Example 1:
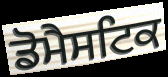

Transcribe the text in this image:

ਡੋਮੈਸਟਿਕ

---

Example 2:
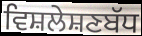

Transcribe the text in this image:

ਵਿਸ਼ਲੇਸ਼ਣਬੱਧ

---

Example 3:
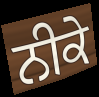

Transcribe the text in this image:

ਨੀਕੇ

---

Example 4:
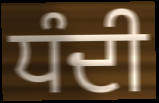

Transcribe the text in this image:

ਧੰਦੀ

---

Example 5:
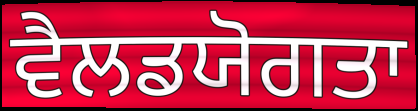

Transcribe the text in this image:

ਵੈਲਡਯੋਗਤਾ